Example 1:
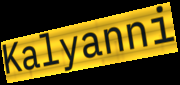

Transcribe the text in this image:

Kalyanni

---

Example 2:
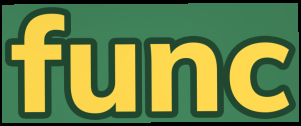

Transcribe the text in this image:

func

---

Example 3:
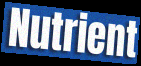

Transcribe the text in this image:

Nutrient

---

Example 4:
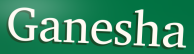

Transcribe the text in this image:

Ganesha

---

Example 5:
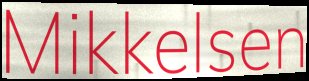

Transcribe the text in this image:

Mikkelsen